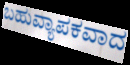
ಬಹುವ್ಯಾಪಕವಾದ